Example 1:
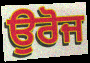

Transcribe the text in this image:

ਉਰੋਜ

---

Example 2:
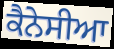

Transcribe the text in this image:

ਕੈਨੇਸੀਆ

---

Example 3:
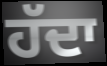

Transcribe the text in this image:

ਹੱਦਾ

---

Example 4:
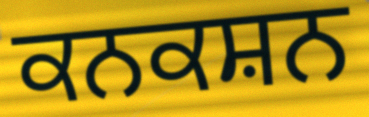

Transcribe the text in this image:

ਕਨਕਸ਼ਨ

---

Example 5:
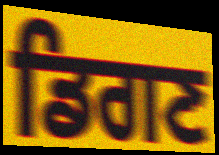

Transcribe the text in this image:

ਡਿਗਣ